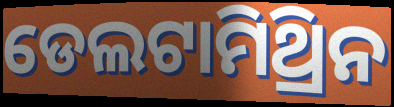
ଡେଲଟାମିଥ୍ରିନ